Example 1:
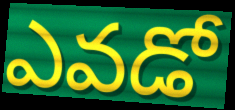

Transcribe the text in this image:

ఎవడో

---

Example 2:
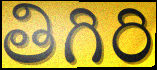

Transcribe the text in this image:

తిగిరి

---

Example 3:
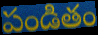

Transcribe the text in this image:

పండితం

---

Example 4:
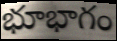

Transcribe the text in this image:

భూభాగం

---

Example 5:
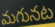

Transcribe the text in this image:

మగునట